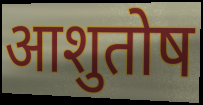
आशुतोष